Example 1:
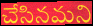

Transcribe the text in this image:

చేసినమని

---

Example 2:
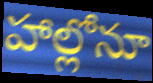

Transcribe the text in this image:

హాల్లోనూ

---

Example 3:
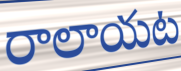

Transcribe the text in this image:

రాలాయట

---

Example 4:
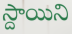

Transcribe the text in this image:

స్దాయిని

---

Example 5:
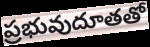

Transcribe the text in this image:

ప్రభువుదూతతో